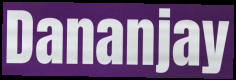
Dananjay